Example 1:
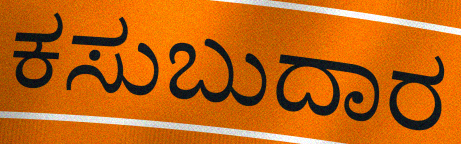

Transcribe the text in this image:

ಕಸುಬುದಾರ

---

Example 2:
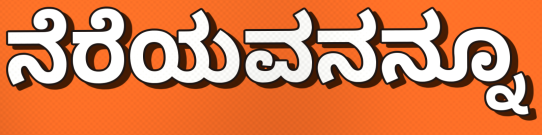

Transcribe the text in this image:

ನೆರೆಯವನನ್ನೂ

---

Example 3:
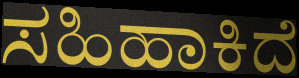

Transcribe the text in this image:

ಸಹಿಹಾಕಿದೆ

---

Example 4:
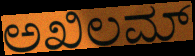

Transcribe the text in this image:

ಅಖಿಲಮ್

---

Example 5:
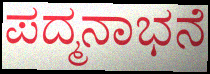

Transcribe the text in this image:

ಪದ್ಮನಾಭನೆ